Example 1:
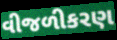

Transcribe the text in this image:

વીજળીકરણ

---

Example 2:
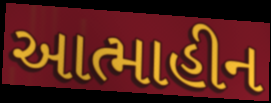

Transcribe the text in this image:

આત્માહીન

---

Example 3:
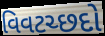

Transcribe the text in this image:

વિવટચ્છદો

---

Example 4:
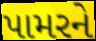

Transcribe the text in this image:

પામરને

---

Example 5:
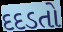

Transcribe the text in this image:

દદડતો